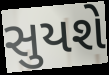
સુયશે